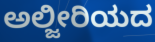
ಅಲ್ಜೀರಿಯದ